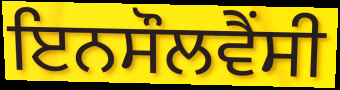
ਇਨਸੌਲਵੈਂਸੀ